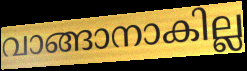
വാങ്ങാനാകില്ല